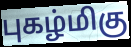
புகழ்மிகு